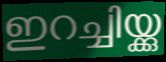
ഇറച്ചിയ്ക്കു